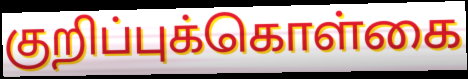
குறிப்புக்கொள்கை